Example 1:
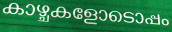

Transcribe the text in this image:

കാഴ്ചകളോടൊപ്പം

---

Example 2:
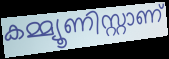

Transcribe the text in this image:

കമ്മ്യൂണിസ്റ്റാണ്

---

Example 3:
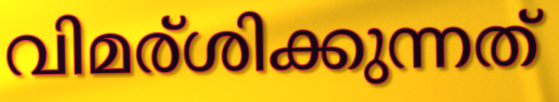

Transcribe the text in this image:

വിമര്ശിക്കുന്നത്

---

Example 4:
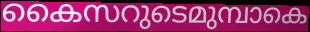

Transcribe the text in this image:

കൈസറുടെമുമ്പാകെ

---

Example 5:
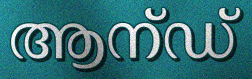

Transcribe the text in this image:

ആന്ഡ്